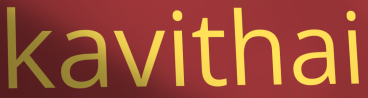
kavithai